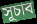
সূচাব